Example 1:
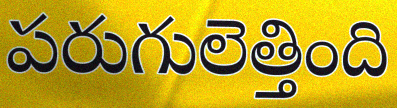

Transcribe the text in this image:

పరుగులెత్తింది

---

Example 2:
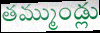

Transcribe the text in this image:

తమ్ముండ్లు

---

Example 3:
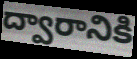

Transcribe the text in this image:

ద్వారానికి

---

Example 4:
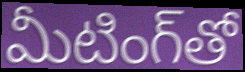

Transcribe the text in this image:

మీటింగ్‌తో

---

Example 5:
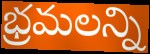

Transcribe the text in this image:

భ్రమలన్ని